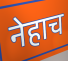
नेहाच